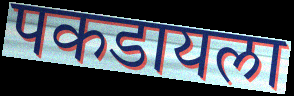
पकडायला